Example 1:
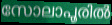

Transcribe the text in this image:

സോലാപൂരിൽ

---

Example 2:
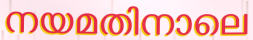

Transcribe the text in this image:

നയമതിനാലെ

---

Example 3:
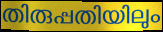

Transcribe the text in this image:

തിരുപ്പതിയിലും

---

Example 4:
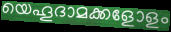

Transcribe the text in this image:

യെഹൂദാമക്കളോളം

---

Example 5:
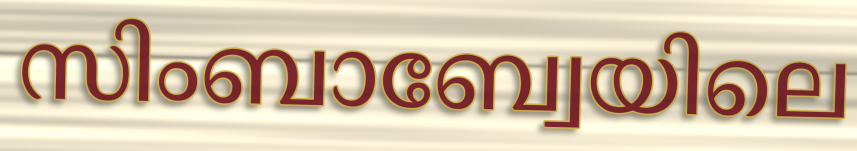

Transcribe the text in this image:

സിംബാബ്വേയിലെ